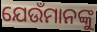
ଯେଉଁମାନଙ୍କୁ